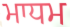
ਮਾਧਮ